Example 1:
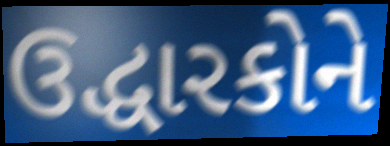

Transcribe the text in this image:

ઉદ્ધારકોને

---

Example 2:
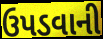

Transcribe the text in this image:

ઉપડવાની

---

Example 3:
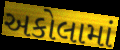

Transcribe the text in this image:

અકોલામાં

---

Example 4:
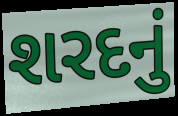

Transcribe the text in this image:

શરદનું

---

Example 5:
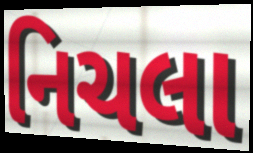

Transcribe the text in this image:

નિચલા